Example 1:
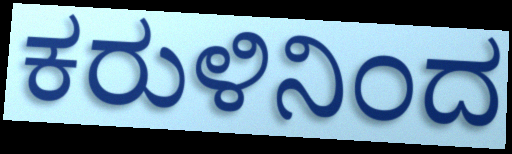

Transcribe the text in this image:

ಕರುಳಿನಿಂದ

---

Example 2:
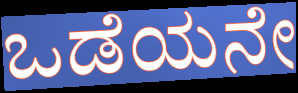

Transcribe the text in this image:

ಒಡೆಯನೇ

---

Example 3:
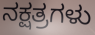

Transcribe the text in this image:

ನಕ್ಷತ್ರಗಳು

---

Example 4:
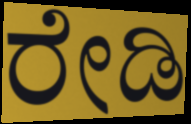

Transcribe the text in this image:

ರೇಡಿ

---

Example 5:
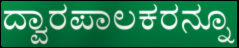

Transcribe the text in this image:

ದ್ವಾರಪಾಲಕರನ್ನೂ